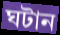
ঘটান